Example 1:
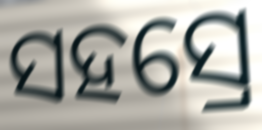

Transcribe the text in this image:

ସହସ୍ରେ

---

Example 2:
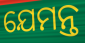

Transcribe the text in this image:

ଯେମନ୍ତ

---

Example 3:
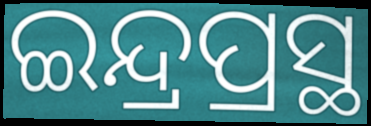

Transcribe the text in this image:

ଇନ୍ଦ୍ରପ୍ରସ୍ଥ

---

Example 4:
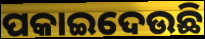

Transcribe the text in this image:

ପକାଇଦେଉଛି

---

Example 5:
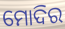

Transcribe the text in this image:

ମୋଦିର